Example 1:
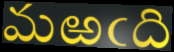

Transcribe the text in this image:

మఱఁది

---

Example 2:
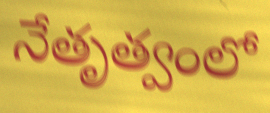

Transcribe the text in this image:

నేతృత్వంలో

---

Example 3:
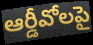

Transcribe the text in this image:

ఆర్డీవోలపై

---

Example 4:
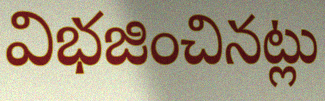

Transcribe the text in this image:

విభజించినట్లు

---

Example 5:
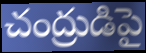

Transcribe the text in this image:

చంద్రుడిపై